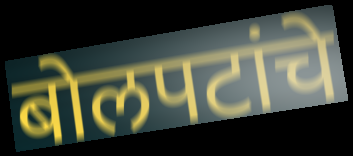
बोलपटांचे